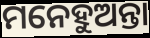
ମନେହୁଅନ୍ତା